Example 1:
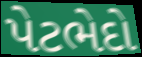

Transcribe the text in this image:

પેટભેદો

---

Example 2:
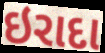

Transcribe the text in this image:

ઇરાદા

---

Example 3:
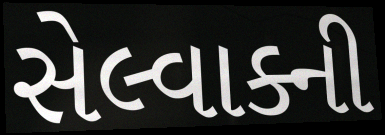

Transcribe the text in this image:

સેલ્વાક્ની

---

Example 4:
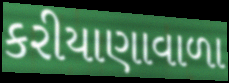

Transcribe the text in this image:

કરીયાણાવાળા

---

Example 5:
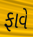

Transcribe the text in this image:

ફાવે